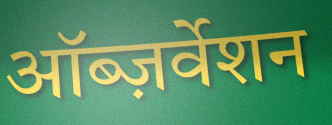
ऑब्ज़र्वेशन